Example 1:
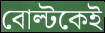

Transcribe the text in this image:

বোল্টকেই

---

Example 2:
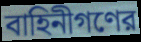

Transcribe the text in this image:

বাহিনীগণের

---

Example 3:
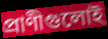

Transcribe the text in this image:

প্রাণীগুলোই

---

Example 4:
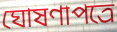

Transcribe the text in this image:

ঘোষণাপত্রে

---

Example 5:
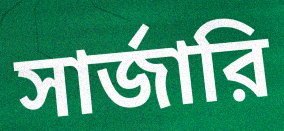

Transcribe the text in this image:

সার্জারি